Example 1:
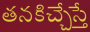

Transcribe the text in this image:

తనకిచ్చేస్తే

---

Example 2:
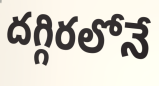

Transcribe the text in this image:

దగ్గిరలోనే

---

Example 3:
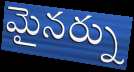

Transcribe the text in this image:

మైనర్ను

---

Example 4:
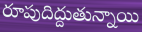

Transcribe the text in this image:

రూపుదిద్దుతున్నాయి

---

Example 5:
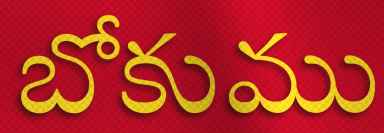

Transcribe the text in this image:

బోకుము